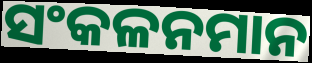
ସଂକଳନମାନ